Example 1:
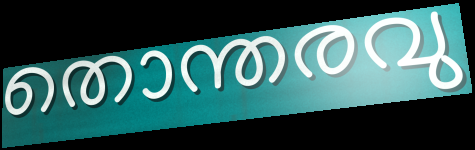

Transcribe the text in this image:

തൊന്തരവു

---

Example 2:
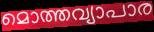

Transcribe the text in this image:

മൊത്തവ്യാപാര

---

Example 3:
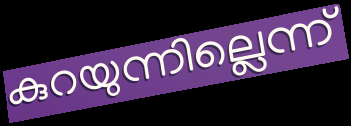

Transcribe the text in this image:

കുറയുന്നില്ലെന്ന്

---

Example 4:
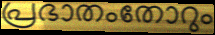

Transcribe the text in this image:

പ്രഭാതംതോറും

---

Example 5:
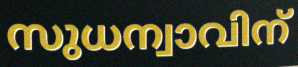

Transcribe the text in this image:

സുധന്വാവിന്